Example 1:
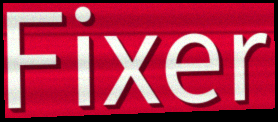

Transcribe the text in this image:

Fixer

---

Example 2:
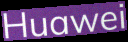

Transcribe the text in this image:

Huawei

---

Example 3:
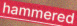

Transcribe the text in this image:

hammered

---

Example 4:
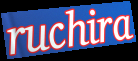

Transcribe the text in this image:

ruchira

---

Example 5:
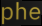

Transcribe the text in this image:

phe